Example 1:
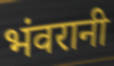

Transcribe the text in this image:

भंवरानी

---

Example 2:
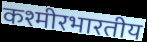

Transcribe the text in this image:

कश्मीरभारतीय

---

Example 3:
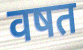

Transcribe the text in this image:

वषत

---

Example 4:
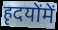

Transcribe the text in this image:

हृदयोंमें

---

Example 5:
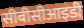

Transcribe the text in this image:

सीबीसीआइडी